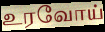
உரவோய்